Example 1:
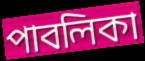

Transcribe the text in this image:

পাবলিকা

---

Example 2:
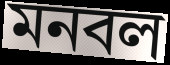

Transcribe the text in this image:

মনবল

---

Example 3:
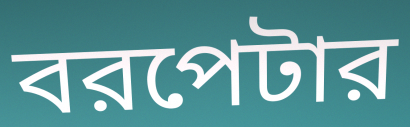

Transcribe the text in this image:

বরপেটার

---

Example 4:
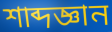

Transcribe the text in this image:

শাব্দজ্ঞান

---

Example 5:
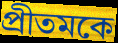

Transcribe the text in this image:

প্রীতমকে